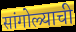
सांगोल्याची